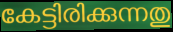
കേട്ടിരിക്കുന്നതു